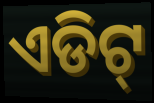
ଏଡିଟ୍